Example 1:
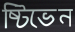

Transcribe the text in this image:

ষ্টিভেন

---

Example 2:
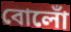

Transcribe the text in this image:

বোলোঁ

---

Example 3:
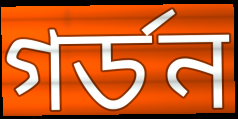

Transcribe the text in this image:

গৰ্ডন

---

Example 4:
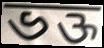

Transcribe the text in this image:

ভক্ত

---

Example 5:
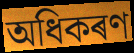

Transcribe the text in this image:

অধিকৰণ